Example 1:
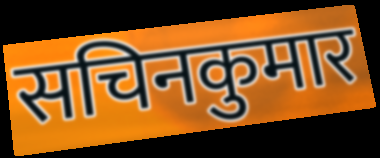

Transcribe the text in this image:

सचिनकुमार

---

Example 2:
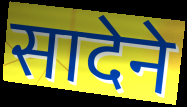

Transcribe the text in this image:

सादेने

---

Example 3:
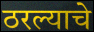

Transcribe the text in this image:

ठरल्याचे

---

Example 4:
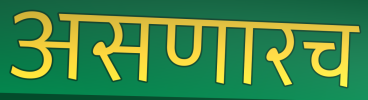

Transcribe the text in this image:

असणारच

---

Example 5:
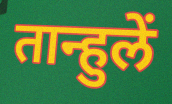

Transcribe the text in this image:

तान्हुलें